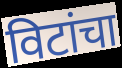
विटांचा